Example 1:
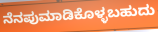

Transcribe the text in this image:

ನೆನಪುಮಾಡಿಕೊಳ್ಳಬಹುದು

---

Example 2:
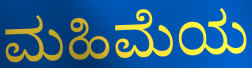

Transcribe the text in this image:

ಮಹಿಮೆಯ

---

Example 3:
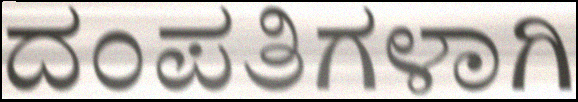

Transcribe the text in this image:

ದಂಪತಿಗಳಾಗಿ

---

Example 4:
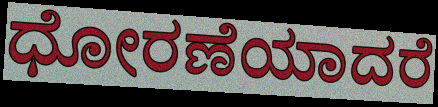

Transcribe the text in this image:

ಧೋರಣೆಯಾದರೆ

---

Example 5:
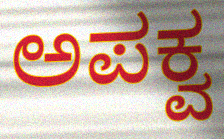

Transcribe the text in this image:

ಅಪಕ್ವ